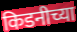
किडनीच्या